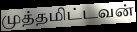
முத்தமிட்டவன்